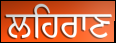
ਲਹਿਰਾਣ